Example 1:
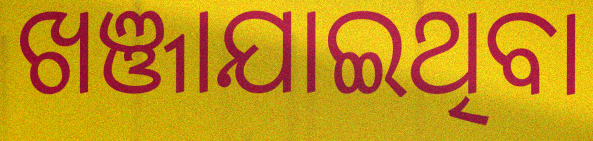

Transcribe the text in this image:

ଖଞ୍ଜାଯାଇଥିବା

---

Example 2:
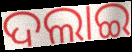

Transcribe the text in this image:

ଦଲାଇ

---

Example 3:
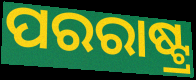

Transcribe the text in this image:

ପରରାଷ୍ଟ୍ର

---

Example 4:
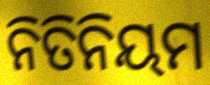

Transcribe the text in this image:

ନିତିନିୟମ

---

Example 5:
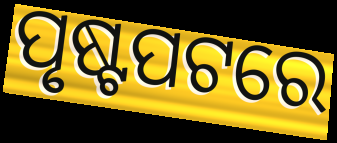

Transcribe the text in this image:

ପୃଷ୍ଟପଟରେ